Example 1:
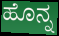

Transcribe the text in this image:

ಹೊನ್ನ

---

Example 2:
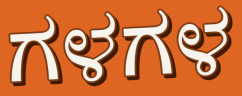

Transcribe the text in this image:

ಗಳಗಳ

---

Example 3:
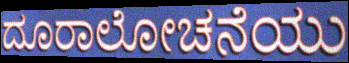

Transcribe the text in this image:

ದೂರಾಲೋಚನೆಯು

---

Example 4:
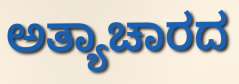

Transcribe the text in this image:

ಅತ್ಯಾಚಾರದ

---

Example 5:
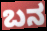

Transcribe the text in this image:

ಬನ